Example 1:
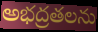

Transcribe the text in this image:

అభద్రతలను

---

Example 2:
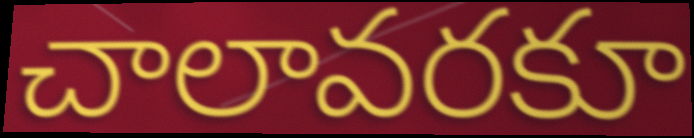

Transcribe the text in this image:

చాలావరకూ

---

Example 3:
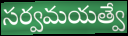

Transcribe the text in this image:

సర్వమయత్వే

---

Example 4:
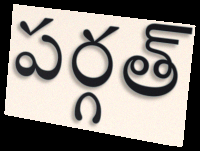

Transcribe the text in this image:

పర్గత్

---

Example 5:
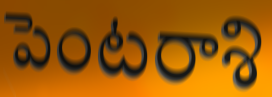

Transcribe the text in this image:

పెంటరాశి